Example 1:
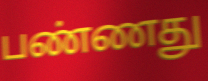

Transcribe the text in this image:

பண்ணது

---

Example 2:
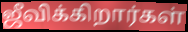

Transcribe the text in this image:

ஜீவிக்கிறார்கள்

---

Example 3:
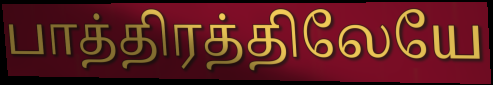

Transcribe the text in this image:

பாத்திரத்திலேயே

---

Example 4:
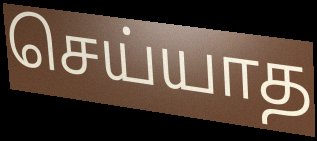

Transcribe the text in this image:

செய்யாத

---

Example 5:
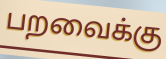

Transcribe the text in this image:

பறவைக்கு